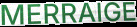
MERRAIGE